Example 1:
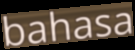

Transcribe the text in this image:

bahasa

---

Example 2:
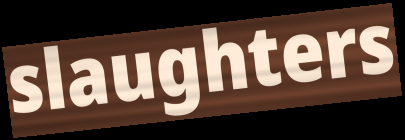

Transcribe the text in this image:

slaughters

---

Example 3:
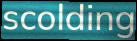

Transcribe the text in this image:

scolding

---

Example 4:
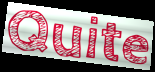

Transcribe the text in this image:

Quite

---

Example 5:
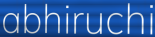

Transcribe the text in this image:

abhiruchi